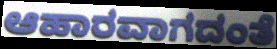
ಆಹಾರವಾಗದಂತೆ